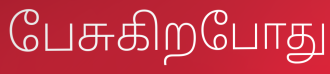
பேசுகிறபோது